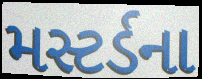
મસ્ટર્ડના